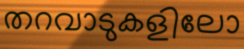
തറവാടുകളിലോ